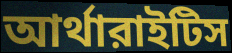
আর্থারাইটিস